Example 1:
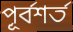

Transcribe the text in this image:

পূর্বশর্ত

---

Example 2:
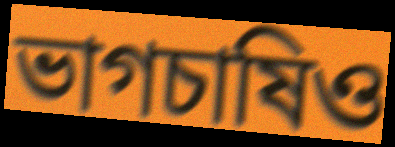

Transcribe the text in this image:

ভাগচাষিও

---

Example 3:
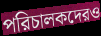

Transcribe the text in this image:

পরিচালকদেরও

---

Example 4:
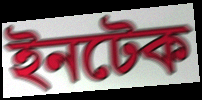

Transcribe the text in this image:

ইনটেক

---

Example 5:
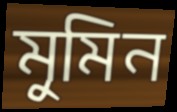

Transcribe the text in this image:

মুমিন